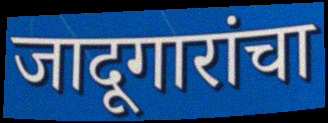
जादूगारांचा